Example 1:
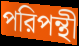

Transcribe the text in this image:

পরিপন্থী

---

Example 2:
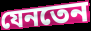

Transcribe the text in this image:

যেনতেন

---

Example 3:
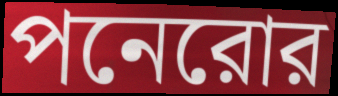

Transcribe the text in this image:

পনেরোর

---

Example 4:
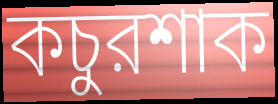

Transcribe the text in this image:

কচুরশাক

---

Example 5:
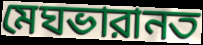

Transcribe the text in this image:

মেঘভারানত